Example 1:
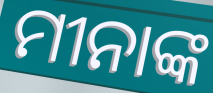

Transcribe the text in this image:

ମୀନାଙ୍କ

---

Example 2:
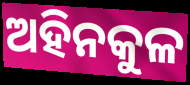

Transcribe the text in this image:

ଅହିନକୁଳ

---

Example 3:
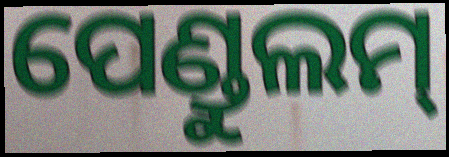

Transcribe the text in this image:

ପେଣ୍ଡୁଲମ୍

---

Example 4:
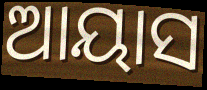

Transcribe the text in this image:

ଆୟାସ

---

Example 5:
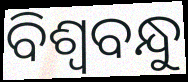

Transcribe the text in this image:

ବିଶ୍ୱବନ୍ଧୁ